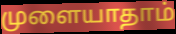
முளையாதாம்